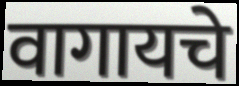
वागायचे